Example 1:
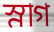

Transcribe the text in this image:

স্নাগ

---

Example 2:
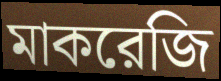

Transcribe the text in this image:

মাকরেজি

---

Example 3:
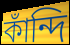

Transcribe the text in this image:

কাঁন্দি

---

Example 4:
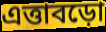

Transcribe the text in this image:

এত্তাবড়ো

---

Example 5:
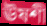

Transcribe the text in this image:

ঊষশী